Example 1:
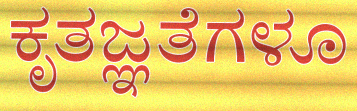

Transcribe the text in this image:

ಕೃತಜ್ಞತೆಗಳೂ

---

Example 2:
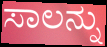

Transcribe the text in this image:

ಸಾಲನ್ನು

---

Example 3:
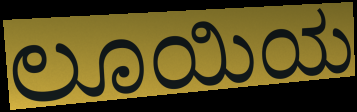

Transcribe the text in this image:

ಲೂಯಿಯ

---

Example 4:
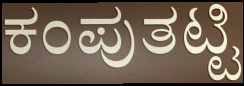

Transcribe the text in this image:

ಕಂಪುತಟ್ಟಿ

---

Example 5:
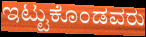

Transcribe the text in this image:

ಇಟ್ಟುಕೊಂಡವರು